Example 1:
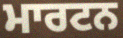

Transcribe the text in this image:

ਮਾਰਟਨ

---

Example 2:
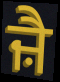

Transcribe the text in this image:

ਜ਼ੈ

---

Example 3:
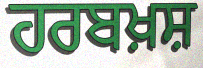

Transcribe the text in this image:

ਹਰਬਖ਼ਸ਼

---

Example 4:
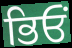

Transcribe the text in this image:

ਭਿਓਂ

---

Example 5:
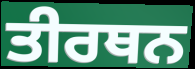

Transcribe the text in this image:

ਤੀਰਥਨ